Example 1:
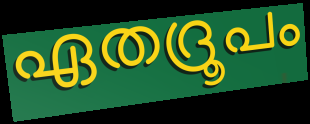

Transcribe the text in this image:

ഏതദ്രൂപം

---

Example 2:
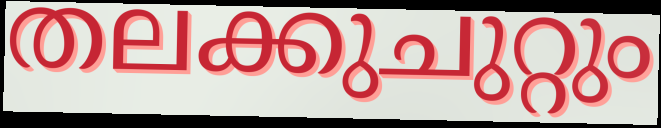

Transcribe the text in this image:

തലക്കുചുറ്റും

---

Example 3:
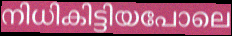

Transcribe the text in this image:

നിധികിട്ടിയപോലെ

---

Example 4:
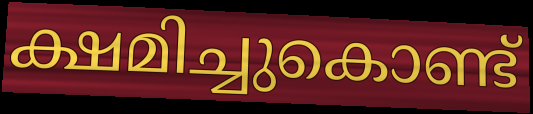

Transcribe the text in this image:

ക്ഷമിച്ചുകൊണ്ട്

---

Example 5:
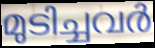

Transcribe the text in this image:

മുടിച്ചവർ